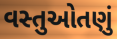
વસ્તુઓતણું